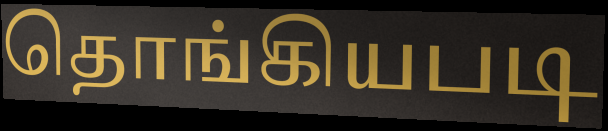
தொங்கியபடி